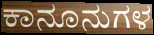
ಕಾನೂನುಗಳ